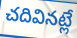
చదివినట్లే